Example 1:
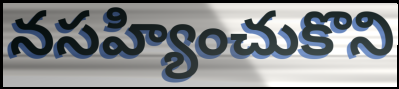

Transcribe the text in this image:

నసహ్యించుకొని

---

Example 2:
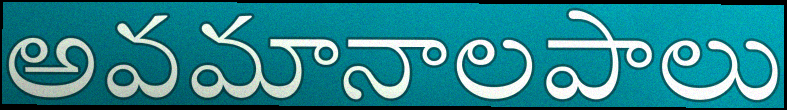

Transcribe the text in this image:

అవమానాలపాలు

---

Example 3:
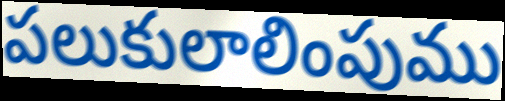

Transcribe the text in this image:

పలుకులాలింపుము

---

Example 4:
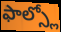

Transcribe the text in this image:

ఫాల్స్లో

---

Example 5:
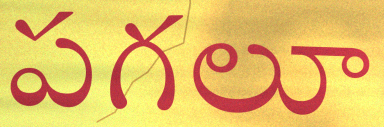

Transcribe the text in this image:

పగలూ